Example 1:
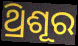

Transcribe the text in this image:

ଥ୍ରିଶୂର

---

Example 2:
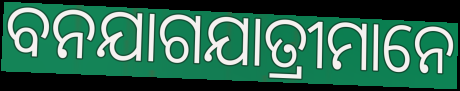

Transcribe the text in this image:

ବନଯାଗଯାତ୍ରୀମାନେ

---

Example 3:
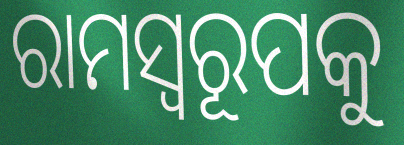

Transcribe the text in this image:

ରାମସ୍ୱରୂପକୁ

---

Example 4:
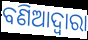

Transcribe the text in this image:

ବଣିଆଦ୍ୱାରା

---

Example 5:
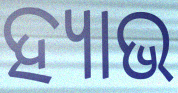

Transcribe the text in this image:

ହ୍ୟାଭ